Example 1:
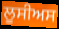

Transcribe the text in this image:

ਲੂਸੀਅਸ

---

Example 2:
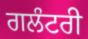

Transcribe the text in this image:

ਗਲੰਟਰੀ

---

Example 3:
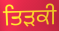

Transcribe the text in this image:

ਤਿੜਕੀ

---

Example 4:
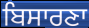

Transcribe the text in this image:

ਬਿਸਾਰਣਾ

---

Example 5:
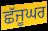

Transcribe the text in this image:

ਛੱਜੂਘਰ